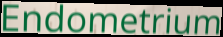
Endometrium